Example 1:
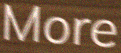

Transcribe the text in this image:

More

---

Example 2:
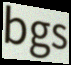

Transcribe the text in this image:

bgs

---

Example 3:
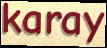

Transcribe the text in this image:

karay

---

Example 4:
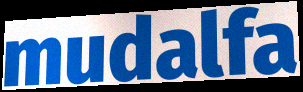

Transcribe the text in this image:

mudalfa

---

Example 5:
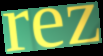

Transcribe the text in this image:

rez